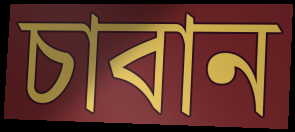
চাবান